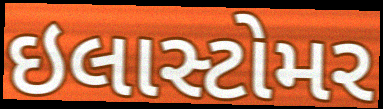
ઇલાસ્ટોમર